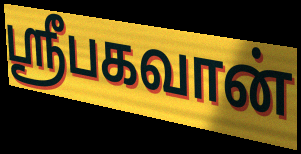
ஸ்ரீபகவான்